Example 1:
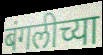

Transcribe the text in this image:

बंगलीच्या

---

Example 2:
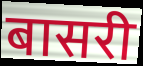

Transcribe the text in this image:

बासरी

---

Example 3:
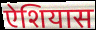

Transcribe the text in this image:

ऐशियास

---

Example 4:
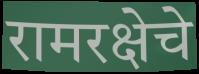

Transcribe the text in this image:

रामरक्षेचे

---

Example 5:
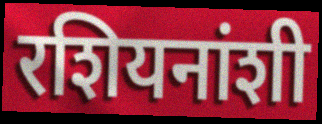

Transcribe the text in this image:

रशियनांशी